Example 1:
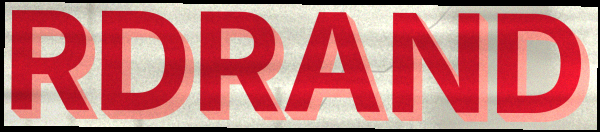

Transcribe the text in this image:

RDRAND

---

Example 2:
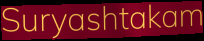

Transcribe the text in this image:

Suryashtakam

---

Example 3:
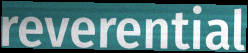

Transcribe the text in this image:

reverential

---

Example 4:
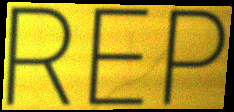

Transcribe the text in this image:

REP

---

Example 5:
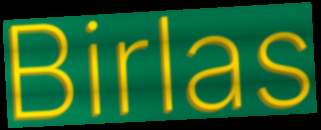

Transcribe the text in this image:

Birlas